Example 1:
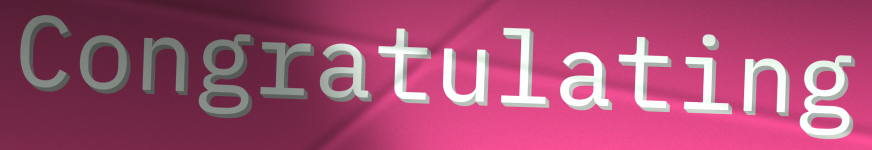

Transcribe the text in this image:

Congratulating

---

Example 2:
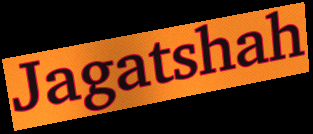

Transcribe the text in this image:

Jagatshah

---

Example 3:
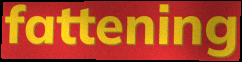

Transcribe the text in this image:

fattening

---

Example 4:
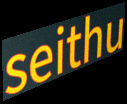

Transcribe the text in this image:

seithu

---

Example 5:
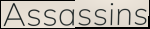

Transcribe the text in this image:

Assassins